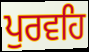
ਪੁਰਵਹਿ